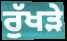
ਰੁੱਖੜੇ